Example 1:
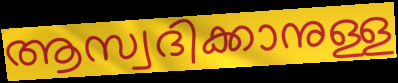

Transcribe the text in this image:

ആസ്വദിക്കാനുള്ള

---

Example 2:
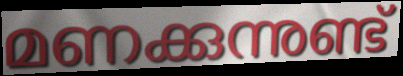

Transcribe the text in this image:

മണക്കുന്നുണ്ട്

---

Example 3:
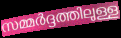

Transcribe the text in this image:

സമ്മർദ്ദത്തിലുള്ള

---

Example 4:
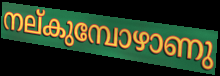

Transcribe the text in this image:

നല്കുമ്പോഴാണു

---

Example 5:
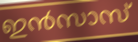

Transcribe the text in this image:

ഇൻസാസ്